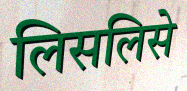
लिसलिसे